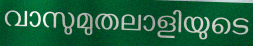
വാസുമുതലാളിയുടെ